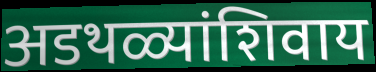
अडथळ्यांशिवाय